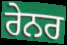
ਰੇਨਰ